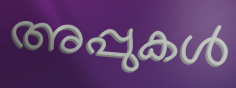
അപ്പുകൾ